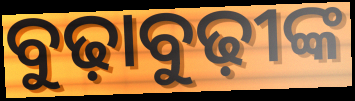
ବୁଢ଼ାବୁଢ଼ୀଙ୍କ